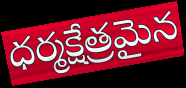
ధర్మక్షేత్రమైన